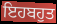
ਇਹਬਹੁਤ